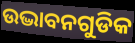
ଉଦ୍ଭାବନଗୁଡିକ